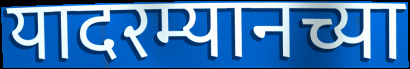
यादरम्यानच्या